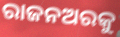
ରାଜନଅରକୁ